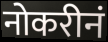
नोकरीनं